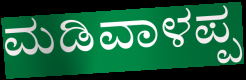
ಮಡಿವಾಳಪ್ಪ